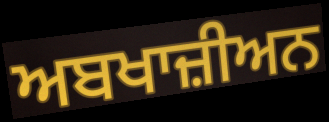
ਅਬਖਾਜ਼ੀਅਨ